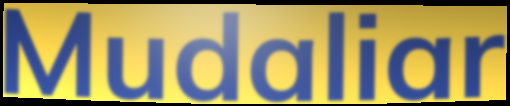
Mudaliar